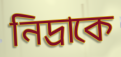
নিদ্রাকে